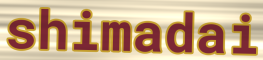
shimadai